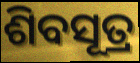
ଶିବସୂତ୍ର